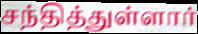
சந்தித்துள்ளார்